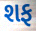
શફ